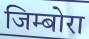
जिम्बोरा